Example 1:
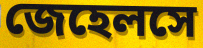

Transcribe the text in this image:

জেহেলসে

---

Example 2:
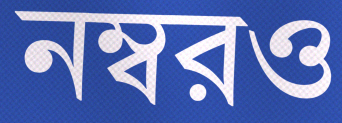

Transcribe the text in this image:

নম্বরও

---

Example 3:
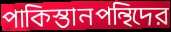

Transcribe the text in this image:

পাকিস্তানপন্থিদের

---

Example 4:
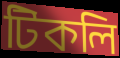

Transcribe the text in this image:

টিকলি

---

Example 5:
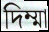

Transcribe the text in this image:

দিম্মা